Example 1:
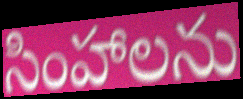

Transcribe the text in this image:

సింహాలను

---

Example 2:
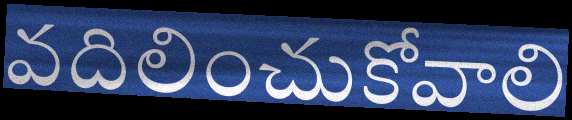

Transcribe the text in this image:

వదిలించుకోవాలి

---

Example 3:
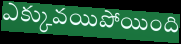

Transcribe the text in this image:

ఎక్కువయిపోయింది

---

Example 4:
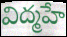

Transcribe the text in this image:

విద్మహే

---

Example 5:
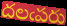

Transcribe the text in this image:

దలఁపరు